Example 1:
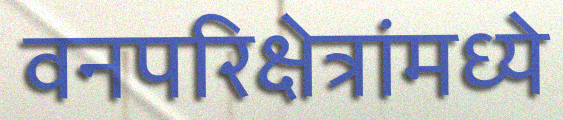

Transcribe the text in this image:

वनपरिक्षेत्रांमध्ये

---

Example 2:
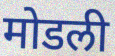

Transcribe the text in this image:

मोडली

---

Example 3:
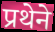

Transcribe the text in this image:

प्रथेने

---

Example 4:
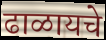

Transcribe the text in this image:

ढाळायचे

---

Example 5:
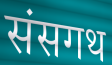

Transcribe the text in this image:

संसगथ